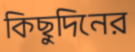
কিছুদিনের